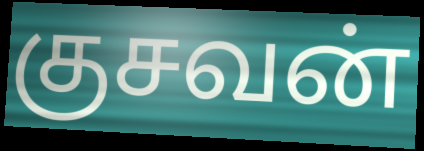
குசவன்